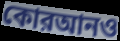
কোরআনও